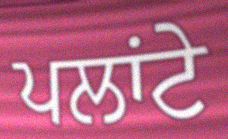
ਪਲਾਂਟੇ